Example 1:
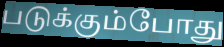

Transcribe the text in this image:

படுக்கும்போது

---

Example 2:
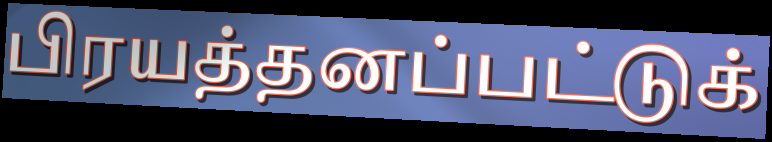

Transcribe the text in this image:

பிரயத்தனப்பட்டுக்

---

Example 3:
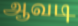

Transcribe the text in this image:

ஆவடி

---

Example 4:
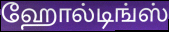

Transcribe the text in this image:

ஹோல்டிங்ஸ்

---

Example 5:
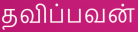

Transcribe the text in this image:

தவிப்பவன்